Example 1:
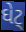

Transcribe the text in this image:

ઘેટ્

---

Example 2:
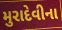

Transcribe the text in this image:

મુરાદેવીના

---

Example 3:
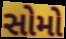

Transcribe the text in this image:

સોમો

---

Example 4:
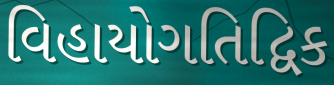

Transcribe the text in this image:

વિહાયોગતિદ્વિક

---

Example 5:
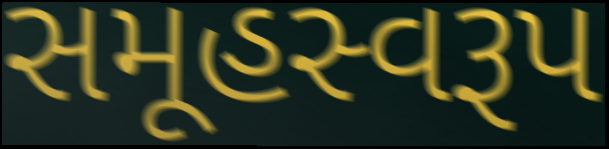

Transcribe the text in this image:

સમૂહસ્વરૂપ